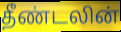
தீண்டலின்